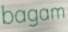
bagam